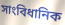
সাংবিধানিক